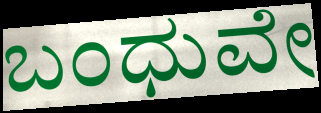
ಬಂಧುವೇ